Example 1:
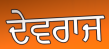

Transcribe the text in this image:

ਦੇਵਰਾਜ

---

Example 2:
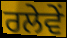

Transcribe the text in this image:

ਰਲੇਵੇਂ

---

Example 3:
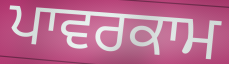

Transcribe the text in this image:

ਪਾਵਰਕਾਮ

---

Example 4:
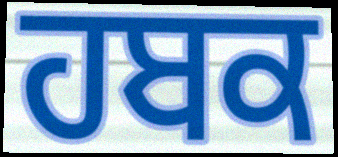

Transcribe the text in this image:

ਹਬਕ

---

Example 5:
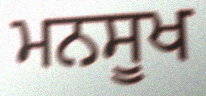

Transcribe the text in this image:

ਮਨਸੂਖ